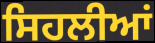
ਸਿਹਲੀਆਂ